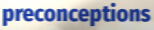
preconceptions